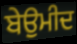
ਬੇਉਮੀਦ